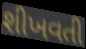
શીખવતી